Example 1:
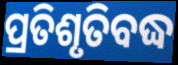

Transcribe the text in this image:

ପ୍ରତିଶୃତିବଦ୍ଧ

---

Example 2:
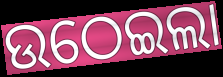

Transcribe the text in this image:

ଉଠେଇଲା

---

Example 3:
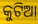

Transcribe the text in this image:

କୁଟିଆ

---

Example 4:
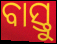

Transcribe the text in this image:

ବାସ୍ତୁ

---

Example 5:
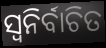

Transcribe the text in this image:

ସ୍ବନିର୍ବାଚିତ